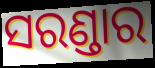
ସରଣ୍ଡାର